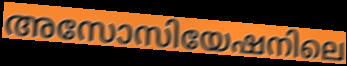
അസോസിയേഷനിലെ